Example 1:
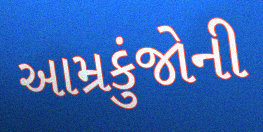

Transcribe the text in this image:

આમ્રકુંજોની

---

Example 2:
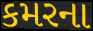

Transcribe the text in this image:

કમરના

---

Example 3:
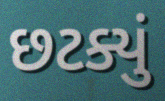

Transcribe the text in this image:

છટક્યું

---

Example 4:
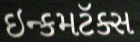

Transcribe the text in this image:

ઇન્કમટૅક્સ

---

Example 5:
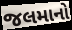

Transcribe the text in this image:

જલમાનો